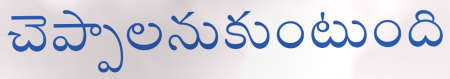
చెప్పాలనుకుంటుంది